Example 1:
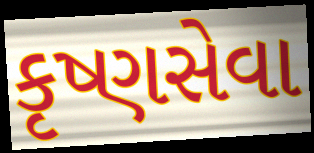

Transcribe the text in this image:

કૃષ્ણસેવા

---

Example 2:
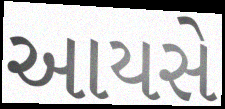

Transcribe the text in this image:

આયસે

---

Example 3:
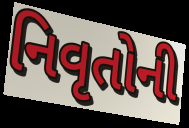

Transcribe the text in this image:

નિવૃતોની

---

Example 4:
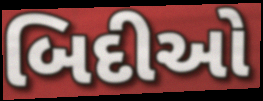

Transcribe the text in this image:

બિદીઓ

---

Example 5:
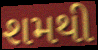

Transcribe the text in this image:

શમથી